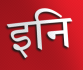
इनि